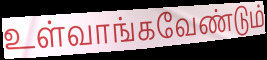
உள்வாங்கவேண்டும்